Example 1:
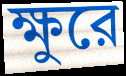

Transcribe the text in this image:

ক্ষুরে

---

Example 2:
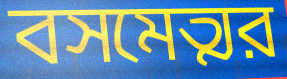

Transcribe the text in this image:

বসমেত্মর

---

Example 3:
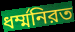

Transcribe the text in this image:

ধর্ম্মনিরত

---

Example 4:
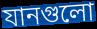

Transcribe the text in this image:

যানগুলো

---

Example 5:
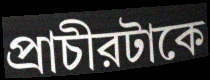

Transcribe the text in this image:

প্রাচীরটাকে